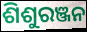
ଶିଶୁରଞ୍ଜନ